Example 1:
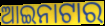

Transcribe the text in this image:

ଆଇନାଟାର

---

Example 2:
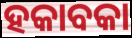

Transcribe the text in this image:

ହକାବକା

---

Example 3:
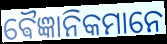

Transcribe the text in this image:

ଵୈଜ୍ଞାନିକମାନେ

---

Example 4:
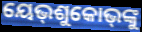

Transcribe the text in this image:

ୟେଭ୍‌ଶୁକୋଭ୍‌ଙ୍କୁ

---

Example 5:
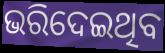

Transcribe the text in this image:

ଭରିଦେଇଥିବ